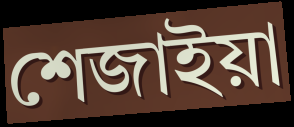
শেজাইয়া